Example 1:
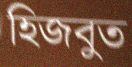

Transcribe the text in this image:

হিজবুত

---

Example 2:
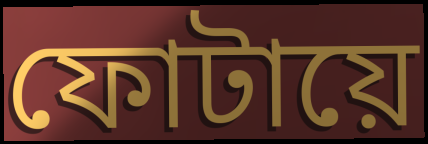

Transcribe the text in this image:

ফোটায়ে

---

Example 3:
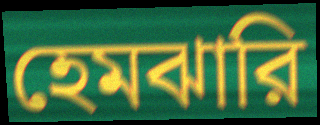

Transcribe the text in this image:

হেমঝারি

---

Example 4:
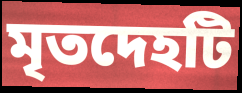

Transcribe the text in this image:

মৃতদেহটি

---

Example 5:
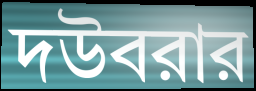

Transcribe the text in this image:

দউবরার